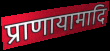
प्राणायामादि